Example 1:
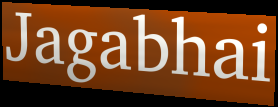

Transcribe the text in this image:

Jagabhai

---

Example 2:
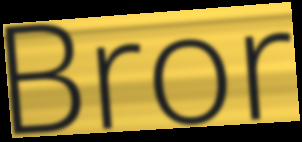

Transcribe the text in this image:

Bror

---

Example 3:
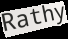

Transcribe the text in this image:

Rathy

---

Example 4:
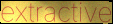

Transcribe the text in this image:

extractive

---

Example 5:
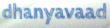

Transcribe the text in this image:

dhanyavaad